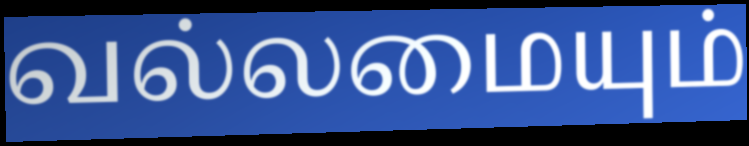
வல்லமையும்